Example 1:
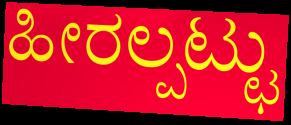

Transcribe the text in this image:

ಹೀರಲ್ಪಟ್ಟು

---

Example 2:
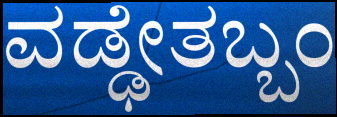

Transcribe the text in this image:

ವಡ್ಢೇತಬ್ಬಂ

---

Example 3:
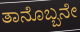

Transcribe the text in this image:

ತಾನೊಬ್ಬನೇ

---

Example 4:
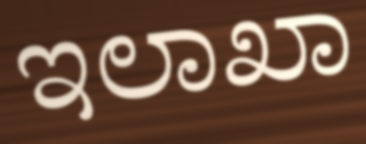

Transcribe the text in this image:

ಇಲಾಖಾ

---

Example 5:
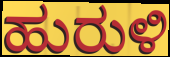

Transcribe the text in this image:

ಹುರುಳಿ